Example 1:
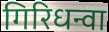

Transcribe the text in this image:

गिरिधन्वा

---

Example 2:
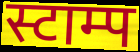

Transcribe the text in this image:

स्टाम्प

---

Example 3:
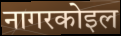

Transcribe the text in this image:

नागरकोइल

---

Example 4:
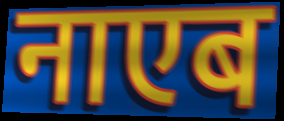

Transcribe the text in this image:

नाएब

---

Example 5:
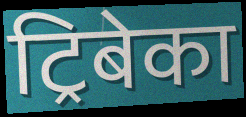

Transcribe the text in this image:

ट्रिबेका